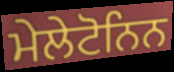
ਮੇਲੇਟੋਨਿਨ